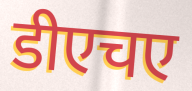
डीएचए